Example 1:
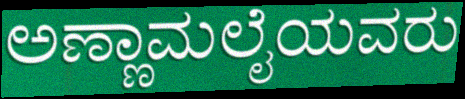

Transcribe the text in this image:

ಅಣ್ಣಾಮಲೈಯವರು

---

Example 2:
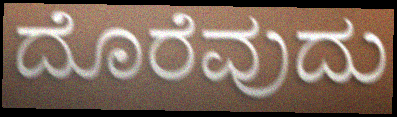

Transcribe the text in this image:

ದೊರೆವುದು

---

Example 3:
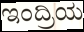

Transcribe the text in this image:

ಇಂದ್ರಿಯ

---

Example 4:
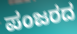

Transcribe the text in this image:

ಪಂಜರದ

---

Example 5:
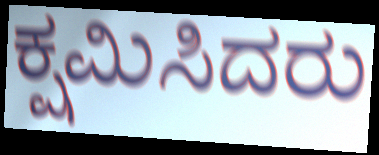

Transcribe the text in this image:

ಕ್ಷಮಿಸಿದರು